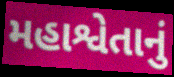
મહાશ્વેતાનું